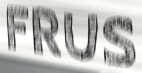
FRUS